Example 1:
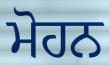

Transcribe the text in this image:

ਮੋਹਨ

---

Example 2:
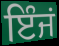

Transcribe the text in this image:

ਇੰਜਂ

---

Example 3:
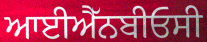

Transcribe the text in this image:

ਆਈਐੱਨਬੀਓਸੀ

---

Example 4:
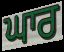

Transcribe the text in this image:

ਘਾਰ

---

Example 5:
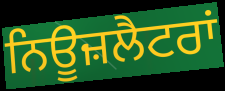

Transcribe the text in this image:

ਨਿਊਜ਼ਲੈਟਰਾਂ